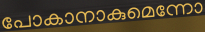
പോകാനാകുമെന്നോ